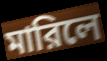
মারিলে